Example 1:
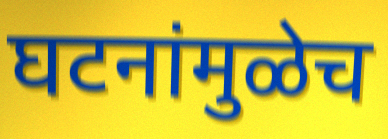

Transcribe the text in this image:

घटनांमुळेच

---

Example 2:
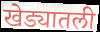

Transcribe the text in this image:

खेड्यातली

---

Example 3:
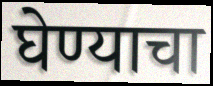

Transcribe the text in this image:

घेण्याचा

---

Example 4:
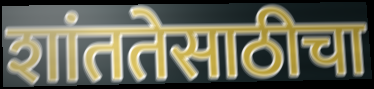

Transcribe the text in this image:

शांततेसाठीचा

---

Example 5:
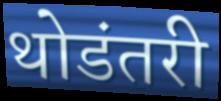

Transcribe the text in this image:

थोडंतरी